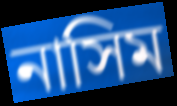
নাসিম